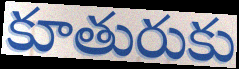
కూతురుకు